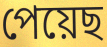
পেয়েছ